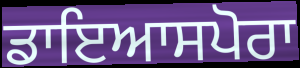
ਡਾਇਆਸਪੋਰਾ